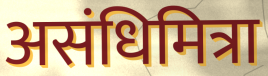
असंधिमित्रा